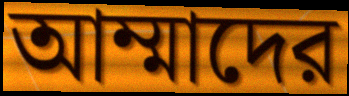
আম্মাদের